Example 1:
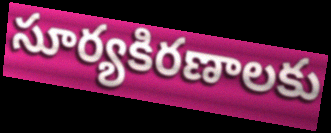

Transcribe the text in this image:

సూర్యకిరణాలకు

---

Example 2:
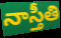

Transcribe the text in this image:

నాస్తీతి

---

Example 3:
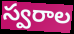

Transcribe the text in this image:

స్వరాల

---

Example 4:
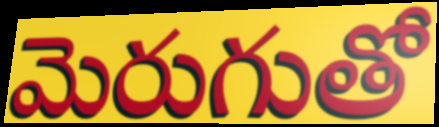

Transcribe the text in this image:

మెరుగుతో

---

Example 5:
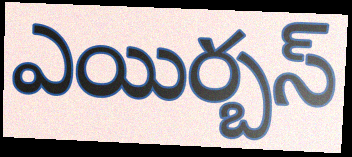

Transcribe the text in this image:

ఎయిర్బస్